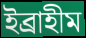
ইব্রাহীম